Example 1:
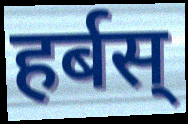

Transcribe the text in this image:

हर्बस्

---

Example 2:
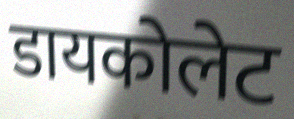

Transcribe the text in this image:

डायकोलेट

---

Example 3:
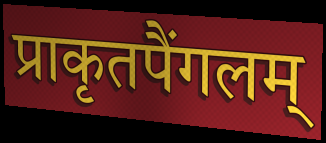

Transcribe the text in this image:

प्राकृतपैंगलम्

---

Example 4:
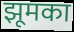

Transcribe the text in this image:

झूमका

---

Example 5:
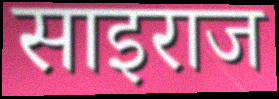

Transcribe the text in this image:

साइराज